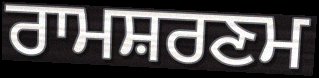
ਰਾਮਸ਼ਰਣਮ